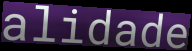
alidade